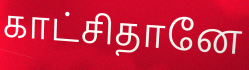
காட்சிதானே